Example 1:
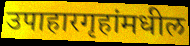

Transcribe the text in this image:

उपाहारगृहांमधील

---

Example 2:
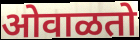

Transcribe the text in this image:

ओवाळतो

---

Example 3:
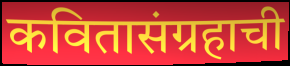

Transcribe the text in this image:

कवितासंग्रहाची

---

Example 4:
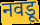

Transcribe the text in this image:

नवडू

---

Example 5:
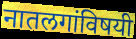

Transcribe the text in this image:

नातलगांविषयी